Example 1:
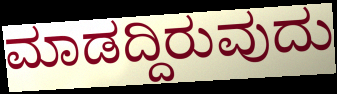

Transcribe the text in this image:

ಮಾಡದ್ದಿರುವುದು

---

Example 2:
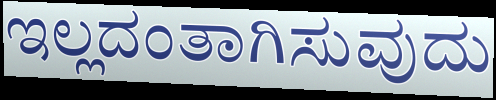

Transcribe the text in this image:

ಇಲ್ಲದಂತಾಗಿಸುವುದು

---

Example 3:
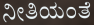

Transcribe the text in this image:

ನೀತಿಯಂತೆ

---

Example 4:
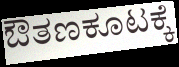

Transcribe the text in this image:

ಔತಣಕೂಟಕ್ಕೆ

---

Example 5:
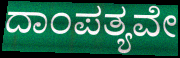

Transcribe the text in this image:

ದಾಂಪತ್ಯವೇ